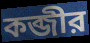
কব্জীর